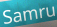
Samru